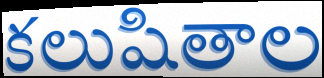
కలుషితాల